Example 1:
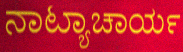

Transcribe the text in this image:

ನಾಟ್ಯಾಚಾರ್ಯ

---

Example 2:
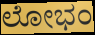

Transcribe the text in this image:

ಲೋಭಂ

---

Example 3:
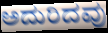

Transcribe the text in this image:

ಅದುರಿದವು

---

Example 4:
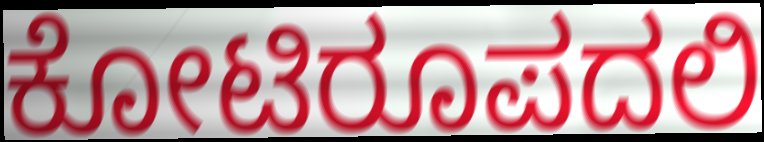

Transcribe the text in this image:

ಕೋಟಿರೂಪದಲಿ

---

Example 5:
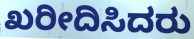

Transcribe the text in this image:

ಖರೀದಿಸಿದರು